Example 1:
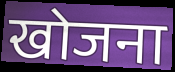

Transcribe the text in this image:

खोजना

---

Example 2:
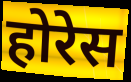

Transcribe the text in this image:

होरेस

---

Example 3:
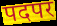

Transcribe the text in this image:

पदपर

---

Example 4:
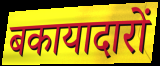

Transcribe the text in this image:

बकायादारों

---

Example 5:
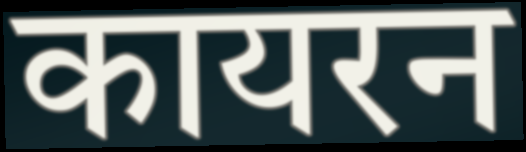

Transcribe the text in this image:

कायरन